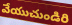
వేయుచుండిరి